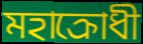
মহাক্রোধী